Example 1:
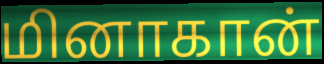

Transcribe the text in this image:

மினாகான்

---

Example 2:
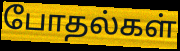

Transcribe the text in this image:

போதல்கள்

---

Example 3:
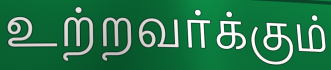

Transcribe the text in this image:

உற்றவர்க்கும்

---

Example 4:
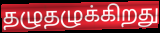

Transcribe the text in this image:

தழுதழுக்கிறது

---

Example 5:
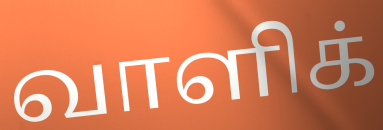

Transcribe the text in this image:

வாளிக்